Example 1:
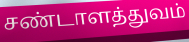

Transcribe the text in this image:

சண்டாளத்துவம்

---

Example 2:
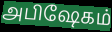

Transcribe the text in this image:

அபிஷேகம்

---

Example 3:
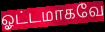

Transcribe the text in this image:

ஓட்டமாகவே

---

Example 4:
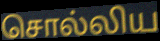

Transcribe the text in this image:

சொல்லிய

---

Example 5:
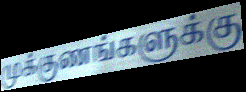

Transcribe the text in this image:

முக்குணங்களுக்கு